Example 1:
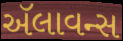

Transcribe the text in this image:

ઍલાવન્સ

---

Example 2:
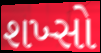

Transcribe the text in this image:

શખ્સો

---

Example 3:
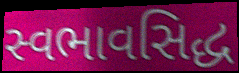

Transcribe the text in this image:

સ્વભાવસિદ્ધ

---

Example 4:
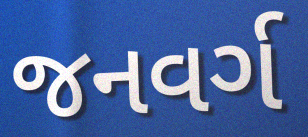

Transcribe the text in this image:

જનવર્ગ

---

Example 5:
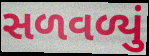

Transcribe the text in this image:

સળવળ્યું